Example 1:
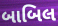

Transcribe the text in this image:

બાબિલ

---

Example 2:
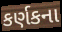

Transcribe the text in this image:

કર્ણકના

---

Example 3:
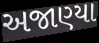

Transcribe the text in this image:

અજાણ્યા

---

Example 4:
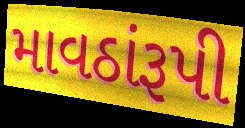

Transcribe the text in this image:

માવઠાંરૂપી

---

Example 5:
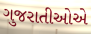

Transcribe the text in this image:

ગુજરાતીઓએ